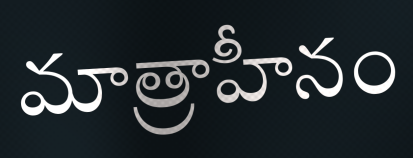
మాత్రాహీనం